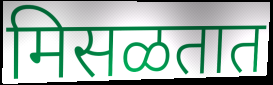
मिसळतात